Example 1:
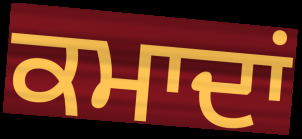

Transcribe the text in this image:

ਕਮਾਦਾਂ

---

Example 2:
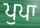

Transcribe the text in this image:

ਪੁਪਾ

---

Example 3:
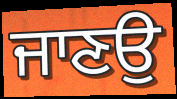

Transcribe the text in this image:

ਜਾਣਉ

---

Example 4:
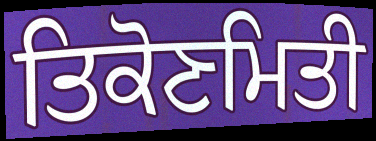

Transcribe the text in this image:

ਤਿਕੋਣਮਿਤੀ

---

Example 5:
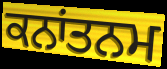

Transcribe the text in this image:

ਕਨਾਂਤਨਮ